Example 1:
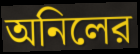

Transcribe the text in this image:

অনিলের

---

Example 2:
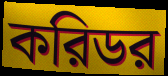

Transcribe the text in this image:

করিডর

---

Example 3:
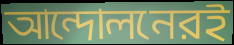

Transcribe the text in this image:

আন্দোলনেরই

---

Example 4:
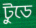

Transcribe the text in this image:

টুডে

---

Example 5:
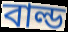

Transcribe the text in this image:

বাল্ড